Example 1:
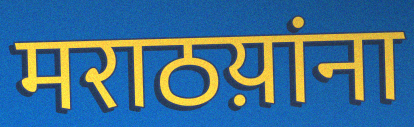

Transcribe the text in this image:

मराठय़ांना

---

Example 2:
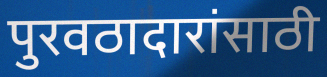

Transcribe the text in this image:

पुरवठादारांसाठी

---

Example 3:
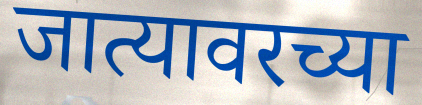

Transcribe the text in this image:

जात्यावरच्या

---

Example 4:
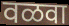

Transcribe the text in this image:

वळवा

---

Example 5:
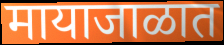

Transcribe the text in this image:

मायाजाळात